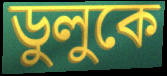
ডুলুকে